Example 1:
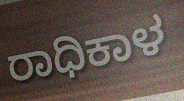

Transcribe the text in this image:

ರಾಧಿಕಾಳ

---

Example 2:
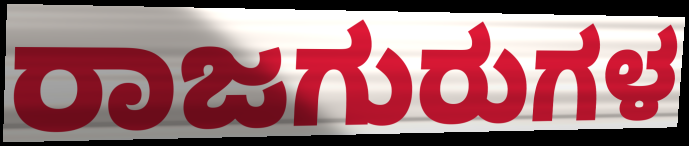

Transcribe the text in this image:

ರಾಜಗುರುಗಳ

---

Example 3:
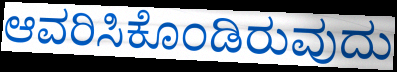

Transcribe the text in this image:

ಆವರಿಸಿಕೊಂಡಿರುವುದು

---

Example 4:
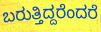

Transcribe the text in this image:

ಬರುತ್ತಿದ್ದರೆಂದರೆ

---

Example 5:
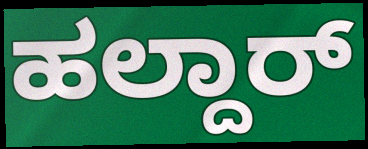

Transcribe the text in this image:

ಹಲ್ದಾರ್